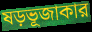
ষড়ভূজাকার